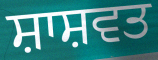
ਸ਼ਾਸ਼ਵਤ